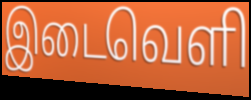
இடைவெளி